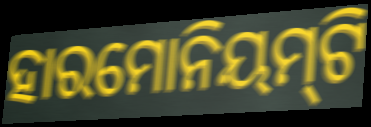
ହାରମୋନିୟମ୍‍ଟି